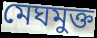
মেঘমুক্ত